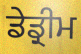
ਡੇਡ੍ਰੀਮ